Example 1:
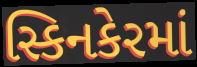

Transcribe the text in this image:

સ્કિનકેરમાં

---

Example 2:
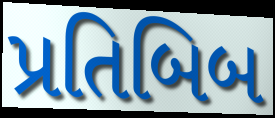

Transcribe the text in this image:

પ્રતિબિબ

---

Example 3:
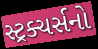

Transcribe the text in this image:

સ્ટ્રક્ચર્સનો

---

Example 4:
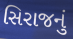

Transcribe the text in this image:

સિરાજનું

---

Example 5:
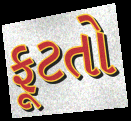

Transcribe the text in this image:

ફૂટતો